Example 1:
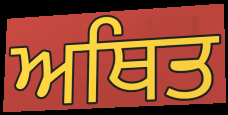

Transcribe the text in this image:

ਅਥਿਤ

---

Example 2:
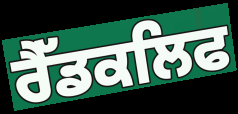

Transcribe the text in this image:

ਰੈੱਡਕਲਿਫ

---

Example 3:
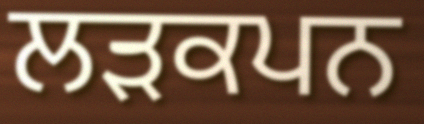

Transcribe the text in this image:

ਲੜਕਪਨ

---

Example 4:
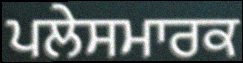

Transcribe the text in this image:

ਪਲੇਸਮਾਰਕ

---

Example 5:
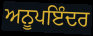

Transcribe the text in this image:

ਅਨੂਪਇੰਦਰ